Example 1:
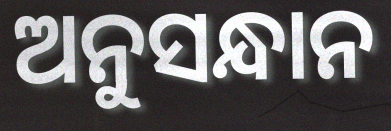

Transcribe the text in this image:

ଅନୁସନ୍ଧାନ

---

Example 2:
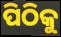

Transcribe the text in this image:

ପିଠିକୁ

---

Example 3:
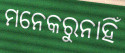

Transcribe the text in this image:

ମନେକରୁନାହିଁ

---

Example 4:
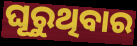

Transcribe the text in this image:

ଘୂରୁଥିବାର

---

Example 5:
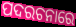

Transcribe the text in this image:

ପଦରଚନାରେ